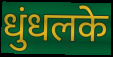
धुंधलके